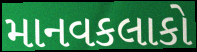
માનવકલાકો